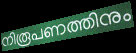
നിരൂപണത്തിനും